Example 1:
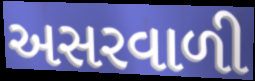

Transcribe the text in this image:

અસરવાળી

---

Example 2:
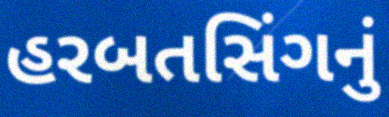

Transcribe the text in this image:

હરબતસિંગનું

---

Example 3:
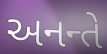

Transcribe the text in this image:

અનન્તે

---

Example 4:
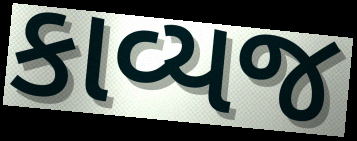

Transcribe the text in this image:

કાવ્યજ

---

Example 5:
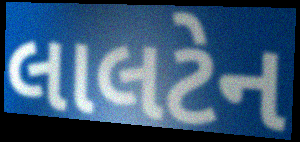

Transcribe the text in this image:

લાલટેન